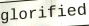
glorified